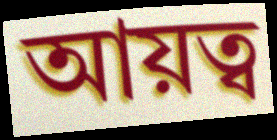
আয়ত্ব